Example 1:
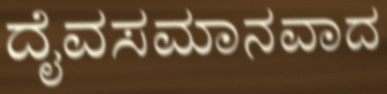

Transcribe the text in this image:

ದೈವಸಮಾನವಾದ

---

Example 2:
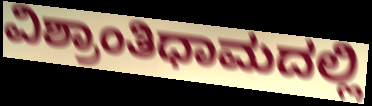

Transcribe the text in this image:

ವಿಶ್ರಾಂತಿಧಾಮದಲ್ಲಿ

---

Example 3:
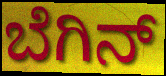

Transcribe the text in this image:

ಬೆಗಿನ್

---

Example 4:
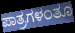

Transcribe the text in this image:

ಪಾತ್ರಗಳಂತೂ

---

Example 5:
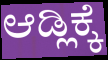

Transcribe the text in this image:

ಆಡ್ಲಿಕ್ಕೆ